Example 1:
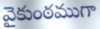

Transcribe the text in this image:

వైకుంఠముగా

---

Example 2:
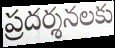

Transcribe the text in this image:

ప్రదర్శనలకు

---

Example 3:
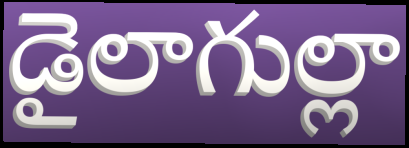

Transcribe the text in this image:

డైలాగుల్లా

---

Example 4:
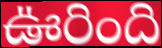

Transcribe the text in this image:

ఊరింది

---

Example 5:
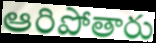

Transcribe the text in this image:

ఆరిపోతారు